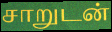
சாறுடன்